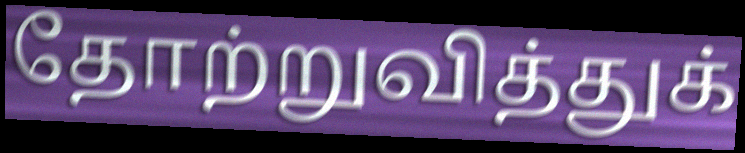
தோற்றுவித்துக்